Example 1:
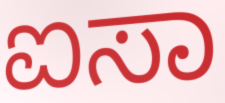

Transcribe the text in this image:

ಐಸಾ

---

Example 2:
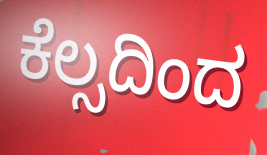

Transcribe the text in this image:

ಕೆಲ್ಸದಿಂದ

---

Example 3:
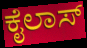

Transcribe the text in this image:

ಕೈಲಾಸ್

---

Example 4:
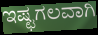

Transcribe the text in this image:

ಇಷ್ಟಗಲವಾಗಿ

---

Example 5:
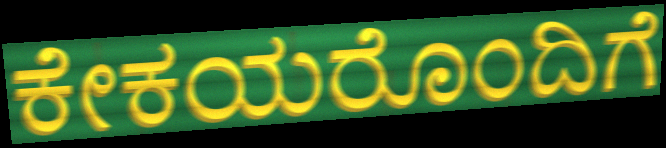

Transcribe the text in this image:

ಕೇಕಯರೊಂದಿಗೆ